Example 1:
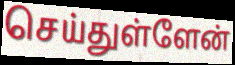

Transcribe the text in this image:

செய்துள்ளேன்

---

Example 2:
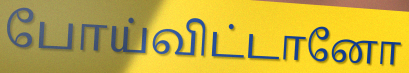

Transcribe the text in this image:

போய்விட்டானோ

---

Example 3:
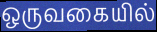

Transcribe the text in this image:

ஒருவகையில்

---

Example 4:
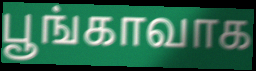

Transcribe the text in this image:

பூங்காவாக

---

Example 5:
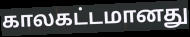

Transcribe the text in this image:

காலகட்டமானது